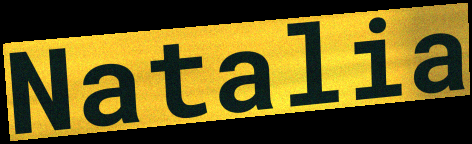
Natalia